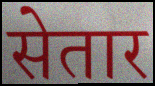
सेतार